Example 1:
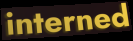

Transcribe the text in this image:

interned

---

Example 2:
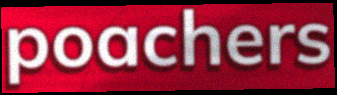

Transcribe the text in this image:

poachers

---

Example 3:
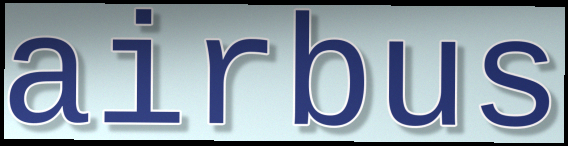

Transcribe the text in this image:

airbus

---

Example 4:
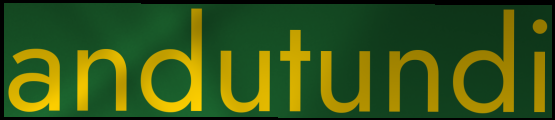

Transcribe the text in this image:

andutundi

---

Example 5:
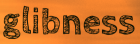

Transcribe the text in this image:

glibness